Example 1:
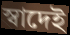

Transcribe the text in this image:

স্বাদেই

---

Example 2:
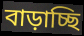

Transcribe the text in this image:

বাড়াচ্ছি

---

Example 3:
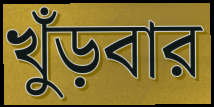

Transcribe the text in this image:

খুঁড়বার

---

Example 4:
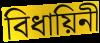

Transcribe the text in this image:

বিধায়িনী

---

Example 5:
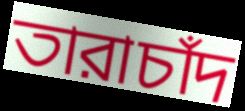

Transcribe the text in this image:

তারাচাঁদ